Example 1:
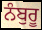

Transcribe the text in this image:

ਨੰਬੁਰੂ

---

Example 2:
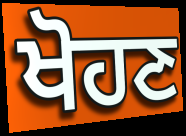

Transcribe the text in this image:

ਖੋਹਣ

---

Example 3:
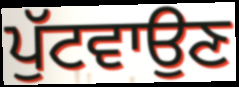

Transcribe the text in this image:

ਪੁੱਟਵਾਉਣ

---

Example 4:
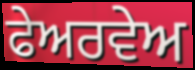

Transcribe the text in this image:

ਫੇਅਰਵੇਅ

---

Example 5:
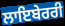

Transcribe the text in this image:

ਲਾਇਬੇਰਰੀ